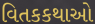
વિતકકથાઓ